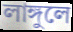
লাঙ্গুলে